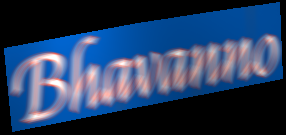
Bhavanno